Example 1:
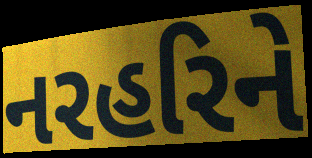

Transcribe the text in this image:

નરહરિને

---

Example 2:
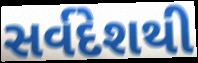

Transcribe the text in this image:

સર્વદેશથી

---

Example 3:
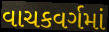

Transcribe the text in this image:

વાચકવર્ગમાં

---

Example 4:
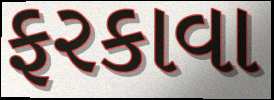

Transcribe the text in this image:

ફરકાવા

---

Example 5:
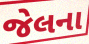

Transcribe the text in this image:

જેલના